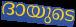
ദായുടെ